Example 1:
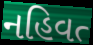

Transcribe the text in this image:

નહિવત્‍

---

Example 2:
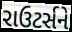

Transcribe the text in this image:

રાઉટર્સને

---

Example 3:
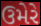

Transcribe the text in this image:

ઉમેરે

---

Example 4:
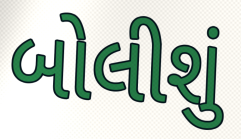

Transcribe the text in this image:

બોલીશું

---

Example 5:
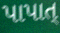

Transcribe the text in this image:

પાપાત્